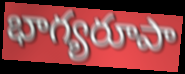
భాగ్యరూపా